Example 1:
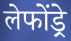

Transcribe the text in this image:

लेफोंड्रे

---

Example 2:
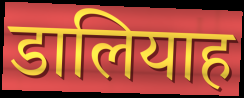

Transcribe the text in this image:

डालियाह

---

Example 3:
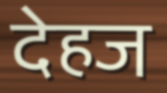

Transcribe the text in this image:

देहज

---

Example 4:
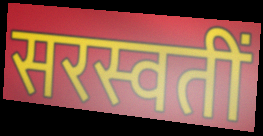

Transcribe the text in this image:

सरस्वतीं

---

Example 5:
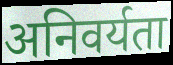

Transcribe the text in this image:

अनिवर्यता